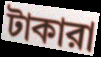
টাকারা